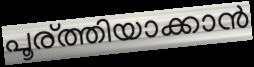
പൂര്ത്തിയാക്കാൻ